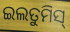
ଇଲତୁମିସ୍